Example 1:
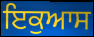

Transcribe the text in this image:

ਇਕੁਆਸ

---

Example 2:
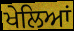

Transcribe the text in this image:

ਖੇਲਿਆਂ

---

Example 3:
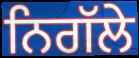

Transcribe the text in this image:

ਨਿਗੱਲੇ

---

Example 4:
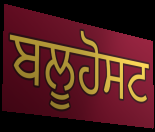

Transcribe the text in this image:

ਬਲੂਹੋਸਟ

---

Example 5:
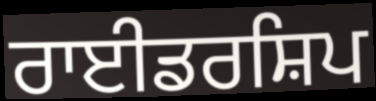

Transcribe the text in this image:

ਰਾਈਡਰਸ਼ਿਪ